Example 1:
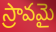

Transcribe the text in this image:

స్రావమై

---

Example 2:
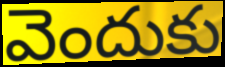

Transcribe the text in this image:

వెందుకు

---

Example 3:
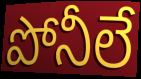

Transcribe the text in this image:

పోనీలే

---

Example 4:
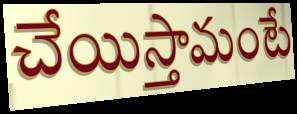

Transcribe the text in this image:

చేయిస్తామంటే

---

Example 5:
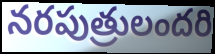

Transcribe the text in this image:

నరపుత్రులందరి